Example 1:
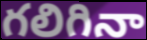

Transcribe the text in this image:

గలిగినా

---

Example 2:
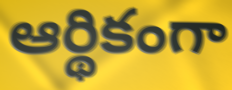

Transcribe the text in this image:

ఆర్థికంగా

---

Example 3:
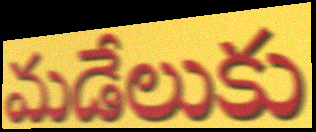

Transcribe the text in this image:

మడేలుకు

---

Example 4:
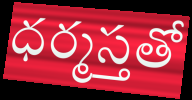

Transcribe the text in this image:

ధర్మస్తతో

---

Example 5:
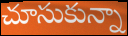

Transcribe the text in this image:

చూసుకున్నా